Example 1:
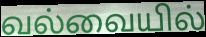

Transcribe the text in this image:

வல்வையில்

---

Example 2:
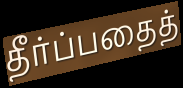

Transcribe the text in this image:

தீர்ப்பதைத்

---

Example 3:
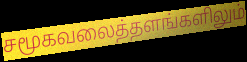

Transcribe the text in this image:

சமூகவலைத்தளங்களிலும்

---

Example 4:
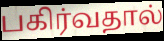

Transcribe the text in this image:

பகிர்வதால்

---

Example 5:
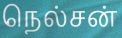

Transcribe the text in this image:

நெல்சன்